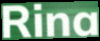
Rina